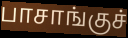
பாசாங்குச்